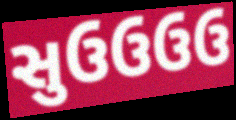
સુઉઉઉઉ